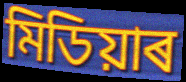
মিডিয়াৰ